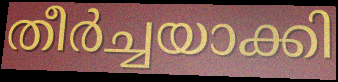
തീർച്ചയാക്കി